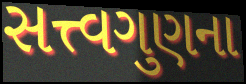
સત્ત્વગુણના